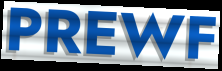
PREWF